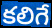
కలిగే